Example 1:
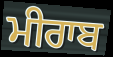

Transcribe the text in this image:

ਮੀਰਾਬ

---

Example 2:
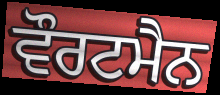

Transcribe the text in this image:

ਵੌਰਟਮੈਨ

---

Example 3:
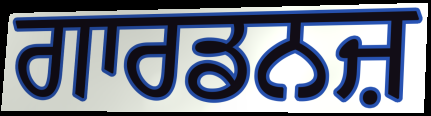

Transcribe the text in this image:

ਗਾਰਡਨਜ਼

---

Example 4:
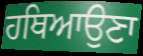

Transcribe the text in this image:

ਹਥਿਆਉਣਾ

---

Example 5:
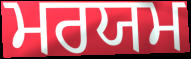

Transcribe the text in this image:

ਮਰਯਮ